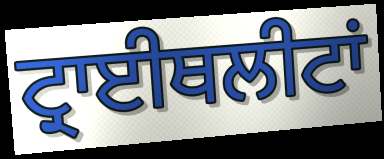
ਟ੍ਰਾਈਥਲੀਟਾਂ